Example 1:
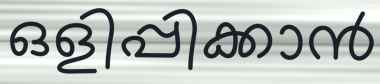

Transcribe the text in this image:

ഒളിപ്പിക്കാൻ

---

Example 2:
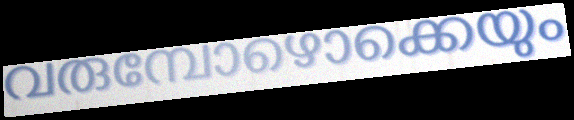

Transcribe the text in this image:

വരുമ്പോഴൊക്കെയും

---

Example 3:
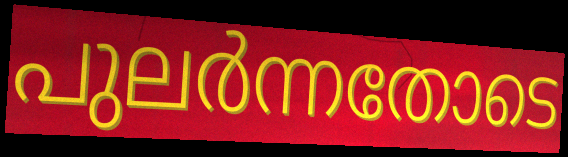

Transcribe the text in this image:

പുലർന്നതോടെ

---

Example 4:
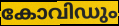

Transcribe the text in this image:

കോവിഡും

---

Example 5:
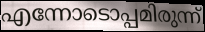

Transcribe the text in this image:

എന്നോടൊപ്പമിരുന്ന്